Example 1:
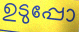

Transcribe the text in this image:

ഉടുപ്പോ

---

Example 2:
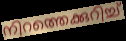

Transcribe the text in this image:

നിറത്തെക്കുറിച്ച്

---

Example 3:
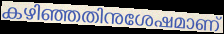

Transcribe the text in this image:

കഴിഞ്ഞതിനുശേഷമാണ്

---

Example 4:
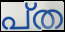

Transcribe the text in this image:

പ്‌ത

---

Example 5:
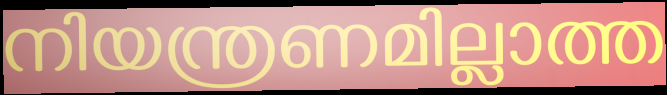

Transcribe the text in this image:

നിയന്ത്രണമില്ലാത്ത